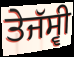
ਤੇਜੱਸ੍ਵੀ